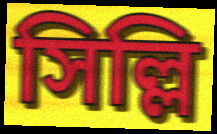
সিল্লি